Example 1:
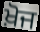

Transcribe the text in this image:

ਖ਼ੋਜ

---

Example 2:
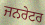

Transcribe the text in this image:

ਜਨਰੇਟਰ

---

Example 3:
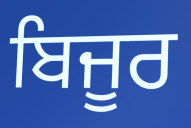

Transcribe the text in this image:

ਬਿਜੂਰ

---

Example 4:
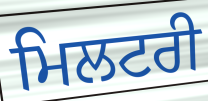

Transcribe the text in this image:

ਮਿਲਟਰੀ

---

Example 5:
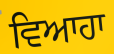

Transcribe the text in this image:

ਵਿਆਹਾ